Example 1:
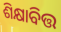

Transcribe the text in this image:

ଶିକ୍ଷାବିତ୍ତ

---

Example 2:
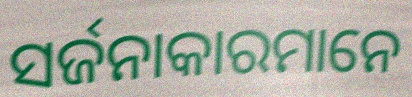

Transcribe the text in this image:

ସର୍ଜନାକାରମାନେ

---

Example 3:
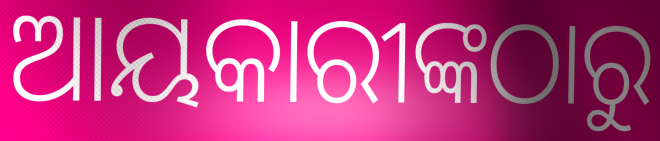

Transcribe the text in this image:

ଆୟକାରୀଙ୍କଠାରୁ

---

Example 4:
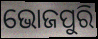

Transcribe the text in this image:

ଭୋଜପୁରି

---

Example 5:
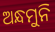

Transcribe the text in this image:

ଅନ୍ଧମୁନି